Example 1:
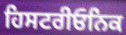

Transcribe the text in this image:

ਹਿਸਟਰੀਓਨਿਕ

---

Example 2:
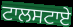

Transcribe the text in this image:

ਟਾਲਸਟਾਏ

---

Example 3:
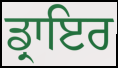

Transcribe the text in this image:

ਡ੍ਰਾਇਰ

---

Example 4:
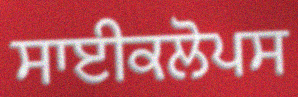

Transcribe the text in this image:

ਸਾਈਕਲੋਪਸ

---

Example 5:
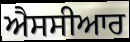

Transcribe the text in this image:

ਐਸਸੀਆਰ